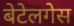
बेटेलगेस